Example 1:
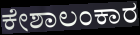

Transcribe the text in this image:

ಕೇಶಾಲಂಕಾರ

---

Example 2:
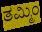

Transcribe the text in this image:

ತಮ್ಮಿಂ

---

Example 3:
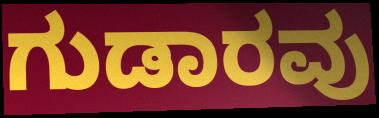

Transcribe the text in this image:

ಗುಡಾರವು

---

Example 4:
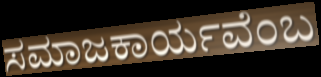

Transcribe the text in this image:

ಸಮಾಜಕಾರ್ಯವೆಂಬ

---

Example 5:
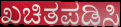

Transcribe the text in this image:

ಖಚಿತಪಡಿಸಿ